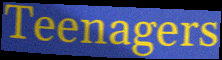
Teenagers